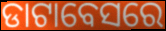
ଡାଟାବେସରେ